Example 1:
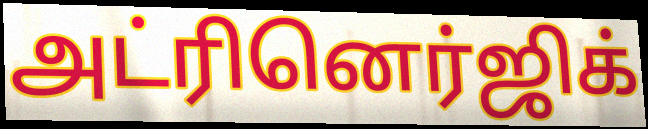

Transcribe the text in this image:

அட்ரினெர்ஜிக்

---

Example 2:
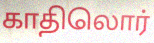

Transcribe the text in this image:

காதிலொர்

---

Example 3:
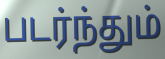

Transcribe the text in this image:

படர்ந்தும்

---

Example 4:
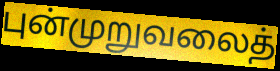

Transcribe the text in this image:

புன்முறுவலைத்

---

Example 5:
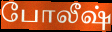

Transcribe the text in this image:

போலீஷ்